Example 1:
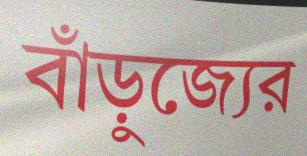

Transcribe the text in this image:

বাঁড়ুজ্যের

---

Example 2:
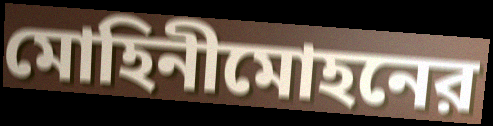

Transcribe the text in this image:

মোহিনীমোহনের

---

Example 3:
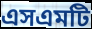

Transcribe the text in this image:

এসএমটি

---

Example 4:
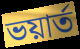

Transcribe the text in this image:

ভয়ার্ত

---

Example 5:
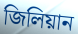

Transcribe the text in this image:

জিলিয়ান